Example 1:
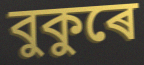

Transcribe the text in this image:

বুকুৰে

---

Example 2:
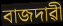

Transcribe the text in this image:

বাজদাৱী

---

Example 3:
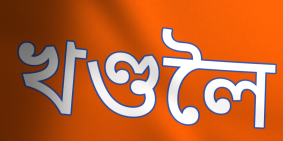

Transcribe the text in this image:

খণ্ডলৈ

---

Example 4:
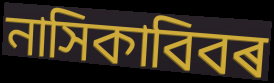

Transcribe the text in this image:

নাসিকাবিবৰ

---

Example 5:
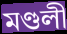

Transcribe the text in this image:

মণ্ডলী